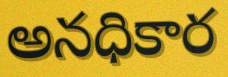
అనధికార